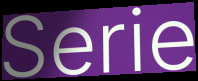
Serie